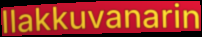
Ilakkuvanarin